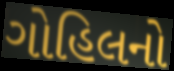
ગોહિલનો